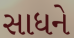
સાધને